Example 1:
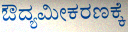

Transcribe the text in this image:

ಔದ್ಯಮೀಕರಣಕ್ಕೆ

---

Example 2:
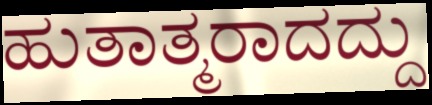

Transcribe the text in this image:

ಹುತಾತ್ಮರಾದದ್ದು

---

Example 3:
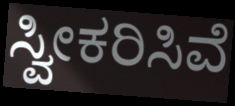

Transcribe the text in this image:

ಸ್ವೀಕರಿಸಿವೆ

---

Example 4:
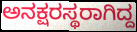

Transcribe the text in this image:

ಅನಕ್ಷರಸ್ಥರಾಗಿದ್ದ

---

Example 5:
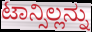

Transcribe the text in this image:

ಟಾನ್ಸಿಲ್ಲನ್ನು